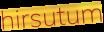
hirsutum